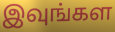
இவுங்கள